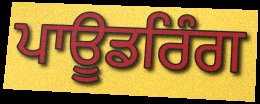
ਪਾਊਡਰਿੰਗ